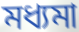
মধ্যমা